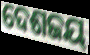
ଦେଶଜୟ